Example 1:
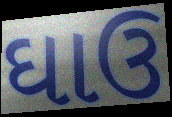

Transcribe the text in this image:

ઘાઉ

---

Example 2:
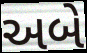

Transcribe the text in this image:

અબે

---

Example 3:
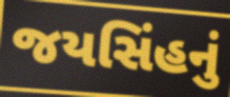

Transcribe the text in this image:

જયસિંહનું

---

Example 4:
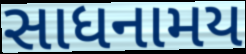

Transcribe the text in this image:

સાધનામય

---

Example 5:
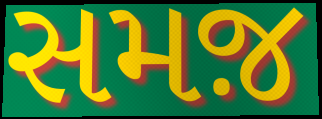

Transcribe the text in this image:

સમજ઼